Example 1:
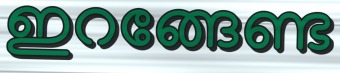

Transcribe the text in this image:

ഇറങ്ങേണ്ട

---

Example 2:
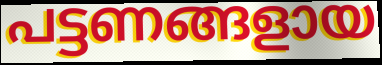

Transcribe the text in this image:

പട്ടണങ്ങളായ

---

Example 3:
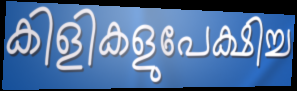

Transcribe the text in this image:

കിളികളുപേക്ഷിച്ച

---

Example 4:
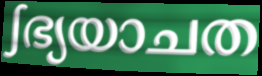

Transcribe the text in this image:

ഽഭ്യയാചത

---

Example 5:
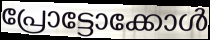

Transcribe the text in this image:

പ്രോട്ടോക്കോൾ